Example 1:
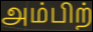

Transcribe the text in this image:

அம்பிற்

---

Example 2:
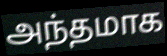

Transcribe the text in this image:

அந்தமாக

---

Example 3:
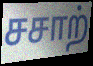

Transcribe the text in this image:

சசாற்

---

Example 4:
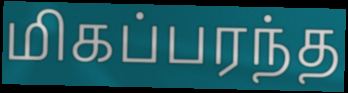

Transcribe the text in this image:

மிகப்பரந்த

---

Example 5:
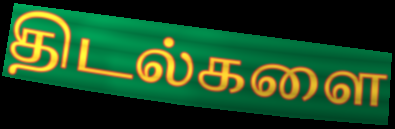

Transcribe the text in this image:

திடல்களை